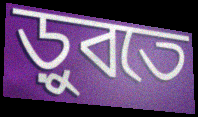
ড়ুবতে